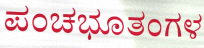
ಪಂಚಭೂತಂಗಳ